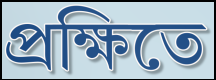
প্রক্ষিতে